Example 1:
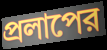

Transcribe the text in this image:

প্রলাপের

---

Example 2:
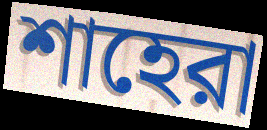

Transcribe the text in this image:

শাহেরা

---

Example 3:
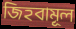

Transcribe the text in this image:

জিহবামূল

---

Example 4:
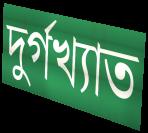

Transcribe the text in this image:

দুর্গখ্যাত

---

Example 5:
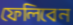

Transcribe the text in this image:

ফেলিবেন